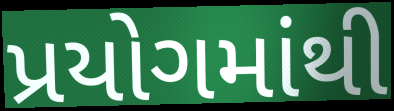
પ્રયોગમાંથી